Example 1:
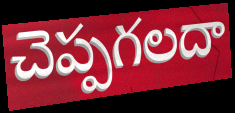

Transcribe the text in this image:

చెప్పగలదా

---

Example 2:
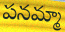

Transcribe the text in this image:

పనమ్మా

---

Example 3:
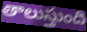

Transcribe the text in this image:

తాలుస్తుంది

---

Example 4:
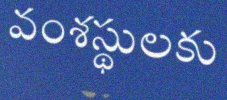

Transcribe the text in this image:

వంశస్థులకు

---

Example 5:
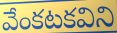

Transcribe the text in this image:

వేంకటకవిని